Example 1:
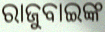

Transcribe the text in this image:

ରାଜୁବାଇଙ୍କ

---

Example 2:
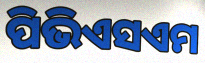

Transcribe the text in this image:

ପିଭିଏସଏମ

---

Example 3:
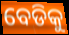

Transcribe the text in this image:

ବେଡିକୁ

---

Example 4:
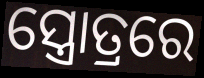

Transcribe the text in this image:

ସ୍ତ୍ରୋତ୍ରରେ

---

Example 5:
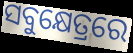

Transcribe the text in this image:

ସବୁକ୍ଷେତ୍ରରେ